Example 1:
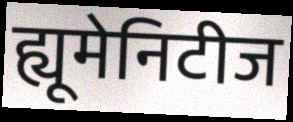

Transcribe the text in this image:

ह्यूमेनिटीज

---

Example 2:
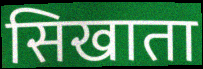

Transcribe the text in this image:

सिखाता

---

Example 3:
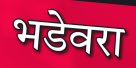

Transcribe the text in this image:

भडेवरा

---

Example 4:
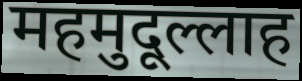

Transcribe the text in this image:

महमुदूल्लाह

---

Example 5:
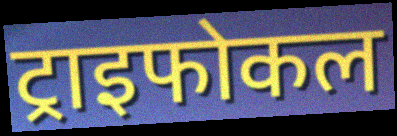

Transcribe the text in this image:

ट्राइफोकल